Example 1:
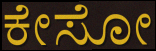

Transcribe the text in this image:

ಕೇಸೋ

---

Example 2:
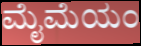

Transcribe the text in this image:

ಮೈಮೆಯಂ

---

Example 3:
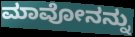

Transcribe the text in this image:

ಮಾವೋನನ್ನು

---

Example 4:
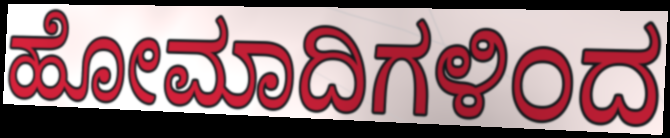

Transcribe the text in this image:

ಹೋಮಾದಿಗಳಿಂದ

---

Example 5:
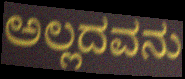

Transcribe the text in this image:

ಅಲ್ಲದವನು